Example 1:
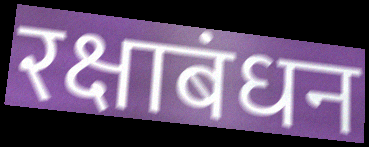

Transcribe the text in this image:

रक्षाबंधन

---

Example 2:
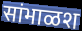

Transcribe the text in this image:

सांभाळश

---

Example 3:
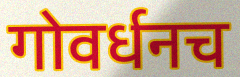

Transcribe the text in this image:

गोवर्धनच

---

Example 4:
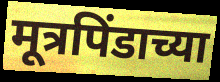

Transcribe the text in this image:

मूत्रपिंडाच्या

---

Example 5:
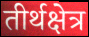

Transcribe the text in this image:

तीर्थक्षेत्र